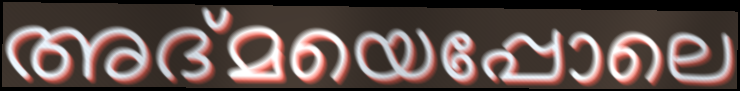
അദ്മയെപ്പോലെ